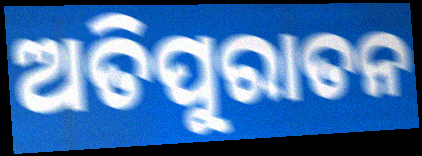
ଅତିପୁରାତନ